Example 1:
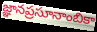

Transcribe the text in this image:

జ్ఞానప్రసూనాంబికా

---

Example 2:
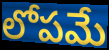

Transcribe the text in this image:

లోపమే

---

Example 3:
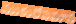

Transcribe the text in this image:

ముకురోపమాన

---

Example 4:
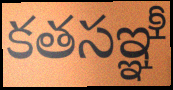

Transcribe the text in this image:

కతసఞ్ఞీ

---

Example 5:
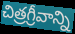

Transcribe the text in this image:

చిత్రగ్రీవాన్ని